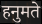
हनुमते